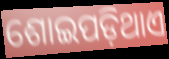
ଶୋଇପଡ଼ିଥାଏ